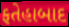
ફતેહાબાદ